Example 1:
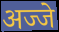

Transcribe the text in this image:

अज्जे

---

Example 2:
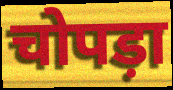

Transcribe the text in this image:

चोपड़ा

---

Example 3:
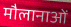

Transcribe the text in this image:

मौलानाओं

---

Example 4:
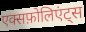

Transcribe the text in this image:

एक्सफ़ोलिएंट्स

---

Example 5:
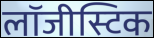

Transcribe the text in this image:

लॉजीस्टिक